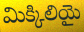
మిక్కిలియై